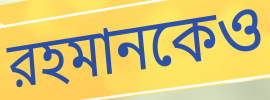
রহমানকেও